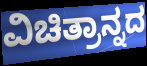
ವಿಚಿತ್ರಾನ್ನದ